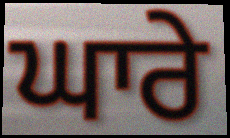
ਘਾਰੇ